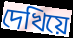
দেখিয়ে